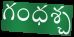
గంధశ్చ